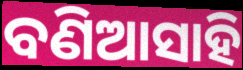
ବଣିଆସାହି